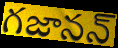
గజానన్